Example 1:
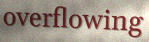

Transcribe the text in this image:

overflowing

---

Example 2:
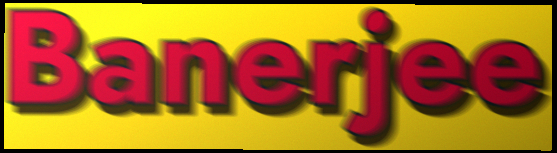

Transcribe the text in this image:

Banerjee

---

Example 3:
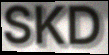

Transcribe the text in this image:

SKD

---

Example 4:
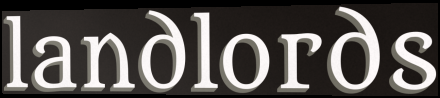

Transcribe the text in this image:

landlords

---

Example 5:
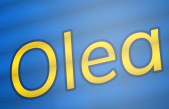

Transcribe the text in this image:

Olea